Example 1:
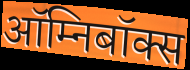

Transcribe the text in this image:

ऑम्निबॉक्स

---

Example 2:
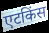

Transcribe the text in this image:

एटकिंस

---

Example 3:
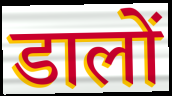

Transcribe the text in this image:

डालों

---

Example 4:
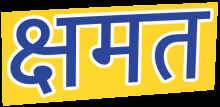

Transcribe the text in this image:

क्षमत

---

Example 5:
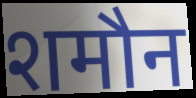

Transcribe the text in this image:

शमौन